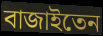
বাজাইতেন